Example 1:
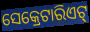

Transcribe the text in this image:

ସେକ୍ରେଟାରିଏଟ୍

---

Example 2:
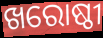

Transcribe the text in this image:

ଖରୋଷ୍ଠୀ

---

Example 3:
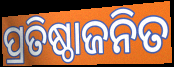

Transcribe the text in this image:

ପ୍ରତିଷ୍ଠାଜନିତ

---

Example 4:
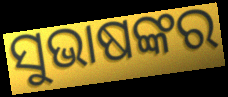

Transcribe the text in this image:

ସୁଭାଷଙ୍କର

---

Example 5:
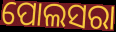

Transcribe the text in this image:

ପୋଲସରା